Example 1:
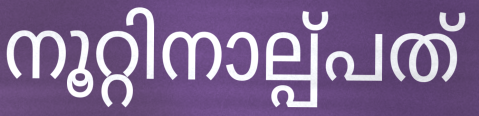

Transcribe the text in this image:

നൂറ്റിനാല്പ്പത്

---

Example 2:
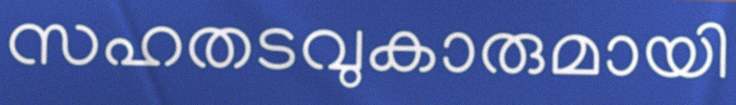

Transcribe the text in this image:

സഹതടവുകാരുമായി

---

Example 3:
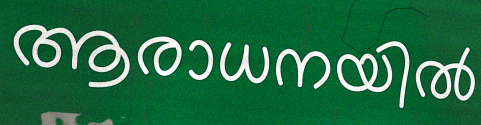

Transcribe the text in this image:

ആരാധനയിൽ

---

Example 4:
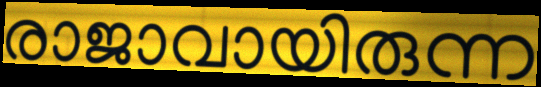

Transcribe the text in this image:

രാജാവായിരുന്ന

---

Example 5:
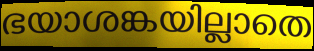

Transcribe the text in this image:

ഭയാശങ്കയില്ലാതെ